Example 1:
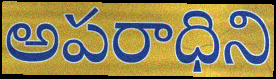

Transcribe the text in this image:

అపరాధిని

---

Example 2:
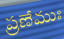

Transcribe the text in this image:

ప్రణేముః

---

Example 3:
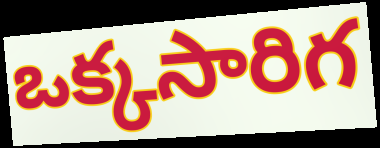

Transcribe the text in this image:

ఒక్కసారిగ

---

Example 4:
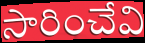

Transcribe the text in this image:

సారించేవి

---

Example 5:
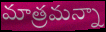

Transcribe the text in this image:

మాత్రమన్నా